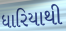
ધારિયાથી